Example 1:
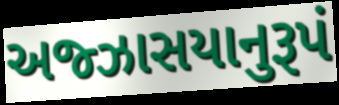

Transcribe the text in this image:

અજ્ઝાસયાનુરૂપં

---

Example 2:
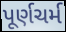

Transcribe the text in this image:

પૂર્ણચર્મ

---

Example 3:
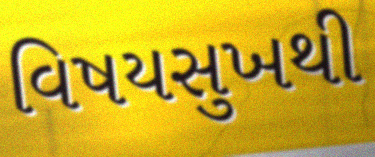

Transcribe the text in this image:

વિષયસુખથી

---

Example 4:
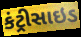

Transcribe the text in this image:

કંટ્રીસાઇડ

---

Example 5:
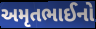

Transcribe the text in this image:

અમૃતભાઈનો